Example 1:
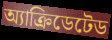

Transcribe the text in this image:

অ্যাক্রিডেটেড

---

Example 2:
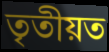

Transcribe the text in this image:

তৃতীয়ত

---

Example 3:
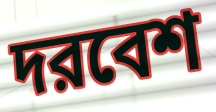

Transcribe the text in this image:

দরবেশ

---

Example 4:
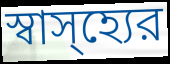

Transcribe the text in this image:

স্বাস্হ্যের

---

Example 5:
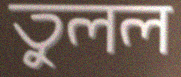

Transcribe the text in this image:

তুলল